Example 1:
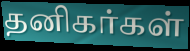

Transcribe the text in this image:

தனிகர்கள்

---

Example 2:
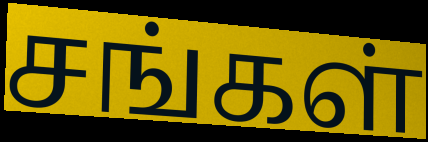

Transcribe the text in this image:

சங்கள்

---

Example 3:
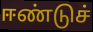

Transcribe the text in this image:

ஈண்டுச்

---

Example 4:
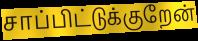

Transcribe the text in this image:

சாப்பிட்டுக்குறேன்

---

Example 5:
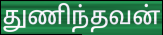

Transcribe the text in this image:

துணிந்தவன்